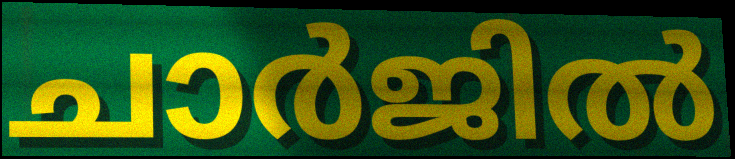
ചാർജിൽ